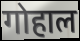
गोहाल